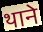
थाने